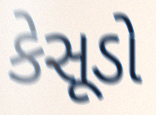
કેસૂડો